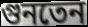
গুনতেন